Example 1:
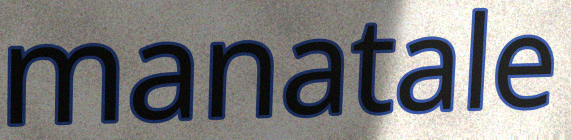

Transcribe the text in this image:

manatale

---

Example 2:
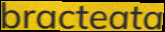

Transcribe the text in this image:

bracteata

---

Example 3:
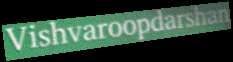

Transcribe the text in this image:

Vishvaroopdarshan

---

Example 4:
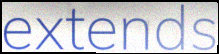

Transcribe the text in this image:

extends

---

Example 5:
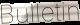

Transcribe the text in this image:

Bulletin